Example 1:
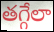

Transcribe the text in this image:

తగ్గేలా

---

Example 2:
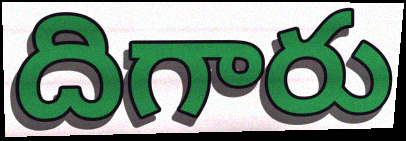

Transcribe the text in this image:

దిగారు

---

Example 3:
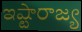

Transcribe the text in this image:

ఇష్టారాజ్య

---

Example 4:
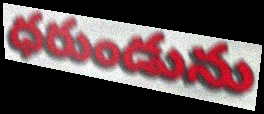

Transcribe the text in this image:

ధరుండును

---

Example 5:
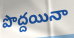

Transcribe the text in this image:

పొద్దయినా